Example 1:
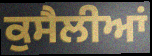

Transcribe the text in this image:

ਕੁਸੈਲੀਆਂ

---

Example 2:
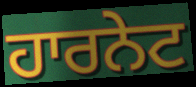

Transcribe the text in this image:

ਹਾਰਨੇਟ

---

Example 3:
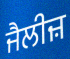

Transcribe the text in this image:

ਜੈਲੀਜ਼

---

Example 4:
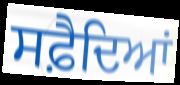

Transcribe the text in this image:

ਸਫ਼ੈਦਿਆਂ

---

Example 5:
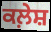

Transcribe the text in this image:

ਕਲ਼ੇਸ਼